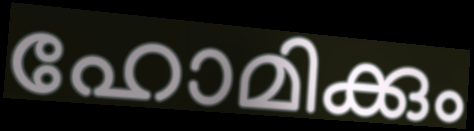
ഹോമിക്കും